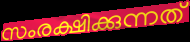
സംരക്ഷിക്കുന്നത്